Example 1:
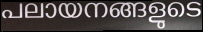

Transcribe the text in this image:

പലായനങ്ങളുടെ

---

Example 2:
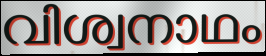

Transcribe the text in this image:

വിശ്വനാഥം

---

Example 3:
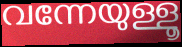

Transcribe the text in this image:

വന്നേയുള്ളൂ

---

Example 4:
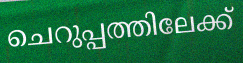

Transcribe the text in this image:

ചെറുപ്പത്തിലേക്ക്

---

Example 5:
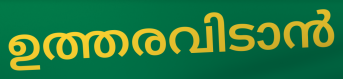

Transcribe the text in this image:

ഉത്തരവിടാൻ